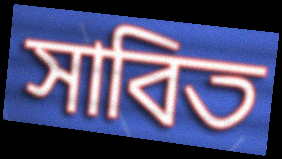
সাবিত